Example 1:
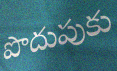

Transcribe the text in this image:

పొదుపుకు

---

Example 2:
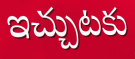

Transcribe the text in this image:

ఇచ్చుటకు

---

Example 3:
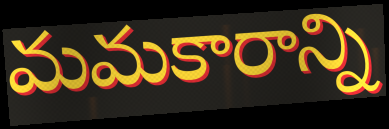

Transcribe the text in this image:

మమకారాన్ని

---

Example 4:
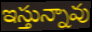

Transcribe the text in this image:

ఇస్తున్నావు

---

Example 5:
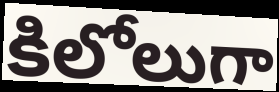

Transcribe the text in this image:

కిలోలుగా